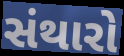
સંથારો